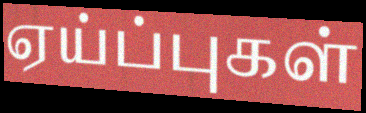
ஏய்ப்புகள்